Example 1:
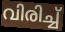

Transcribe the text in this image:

വിരിച്ച്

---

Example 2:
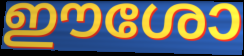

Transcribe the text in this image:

ഈശോ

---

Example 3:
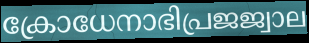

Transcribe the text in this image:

ക്രോധേനാഭിപ്രജജ്വാല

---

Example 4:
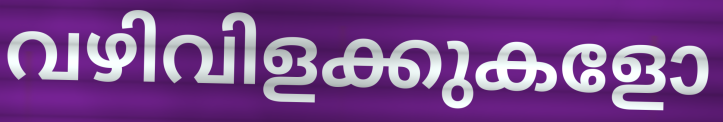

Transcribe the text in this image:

വഴിവിളക്കുകളോ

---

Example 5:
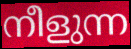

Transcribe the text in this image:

നീളുന്ന